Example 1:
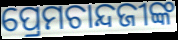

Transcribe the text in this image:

ପ୍ରେମଚାନ୍ଦଜୀଙ୍କ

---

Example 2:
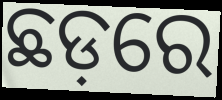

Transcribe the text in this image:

ଛଡ଼ରେ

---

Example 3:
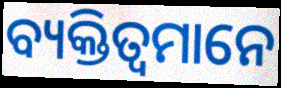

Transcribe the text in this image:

ବ୍ୟକ୍ତିତ୍ୱମାନେ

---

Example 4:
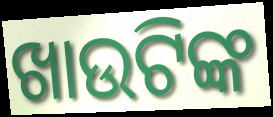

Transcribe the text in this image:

ଖାଉଟିଙ୍କ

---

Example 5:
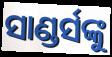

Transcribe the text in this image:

ସାଣ୍ଡର୍ସଙ୍କୁ